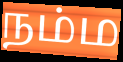
நம்ம